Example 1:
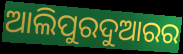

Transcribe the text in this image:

ଆଲିପୁରଦୁଆରର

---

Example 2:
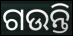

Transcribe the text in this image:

ଗଉନ୍ତି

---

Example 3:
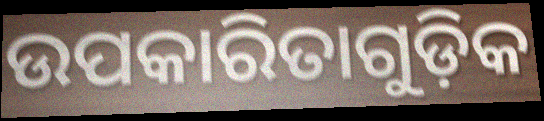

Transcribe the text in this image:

ଉପକାରିତାଗୁଡ଼ିକ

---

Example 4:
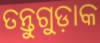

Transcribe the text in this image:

ତନ୍ତୁଗୁଡ଼ାକ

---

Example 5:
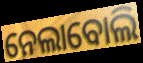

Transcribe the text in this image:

ନେଲାବୋଲି